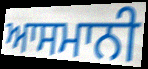
ਆਸਮਾਨੀ